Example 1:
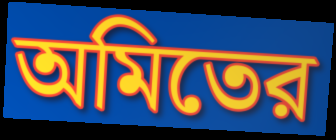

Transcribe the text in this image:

অমিতের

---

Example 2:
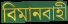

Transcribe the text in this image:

বিমানবাহী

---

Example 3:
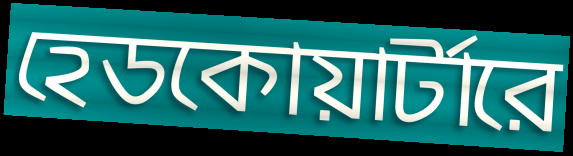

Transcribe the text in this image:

হেডকোয়ার্টারে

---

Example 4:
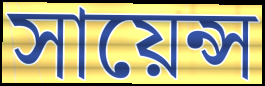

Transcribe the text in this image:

সায়েন্স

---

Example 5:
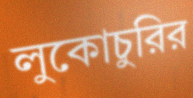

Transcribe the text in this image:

লুকোচুরির